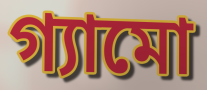
গ্যামো